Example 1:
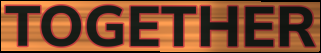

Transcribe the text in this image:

TOGETHER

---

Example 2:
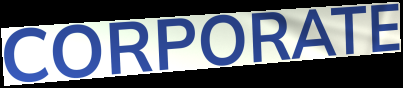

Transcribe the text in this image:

CORPORATE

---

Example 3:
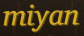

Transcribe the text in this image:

miyan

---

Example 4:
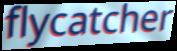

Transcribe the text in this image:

flycatcher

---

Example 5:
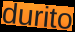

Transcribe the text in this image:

durito